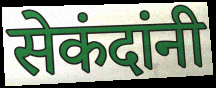
सेकंदांनी